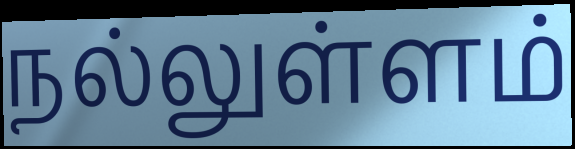
நல்லுள்ளம்